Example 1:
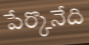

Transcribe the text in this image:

పేర్కొనేది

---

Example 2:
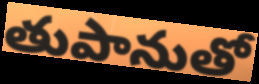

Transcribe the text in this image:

తుపానుతో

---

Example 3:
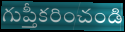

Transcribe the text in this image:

గుప్తీకరించండి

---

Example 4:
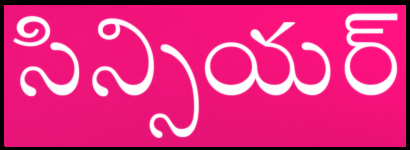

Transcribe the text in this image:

సిన్సియర్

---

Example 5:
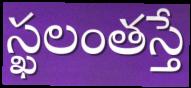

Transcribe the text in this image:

స్ఖలంతస్తే